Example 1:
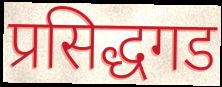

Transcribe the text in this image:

प्रसिद्धगड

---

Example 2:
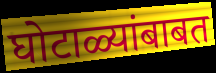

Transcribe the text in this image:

घोटाळ्यांबाबत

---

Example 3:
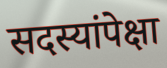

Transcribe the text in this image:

सदस्यांपेक्षा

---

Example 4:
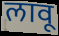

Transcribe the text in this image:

लावू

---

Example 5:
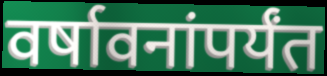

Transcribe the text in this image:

वर्षावनांपर्यंत